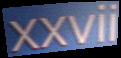
xxvii